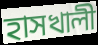
হাসখালী